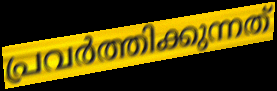
പ്രവർത്തിക്കുന്നത്